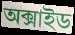
অক্সাইড